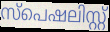
സ്പെഷലിസ്റ്റ്